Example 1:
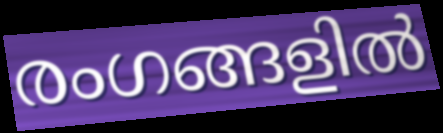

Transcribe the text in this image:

രംഗങ്ങളിൽ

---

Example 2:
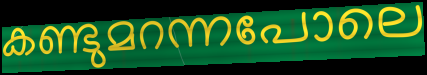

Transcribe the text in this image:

കണ്ടുമറന്നപോലെ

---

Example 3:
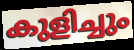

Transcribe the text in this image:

കുളിച്ചും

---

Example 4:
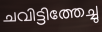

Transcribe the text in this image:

ചവിട്ടിത്തേച്ചു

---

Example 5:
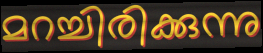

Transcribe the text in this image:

മറച്ചിരിക്കുന്നു